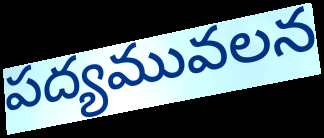
పద్యమువలన